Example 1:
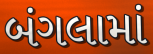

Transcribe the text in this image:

બંગલામાં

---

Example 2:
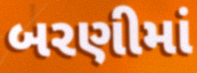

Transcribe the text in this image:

બરણીમાં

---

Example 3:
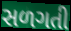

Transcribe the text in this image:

સળગતી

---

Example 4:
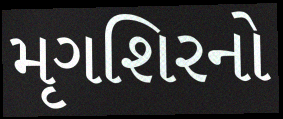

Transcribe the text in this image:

મૃગશિરનો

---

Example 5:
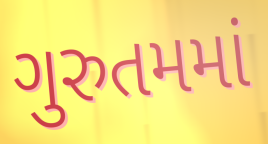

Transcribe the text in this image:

ગુરુતમમાં